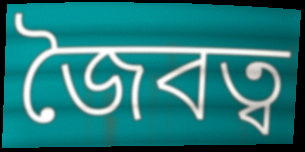
জৈবত্ব